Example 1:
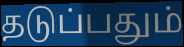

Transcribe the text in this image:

தடுப்பதும்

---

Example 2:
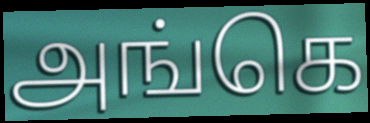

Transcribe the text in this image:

அங்கெ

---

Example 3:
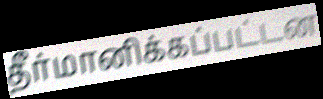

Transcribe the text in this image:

தீர்மானிக்கப்பட்டன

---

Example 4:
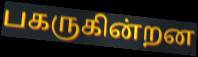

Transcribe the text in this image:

பகருகின்றன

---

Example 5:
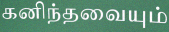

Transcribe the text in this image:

கனிந்தவையும்